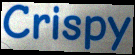
Crispy